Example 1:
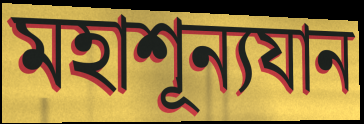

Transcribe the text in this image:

মহাশূন্যযান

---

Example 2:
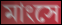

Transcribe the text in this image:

মাংসে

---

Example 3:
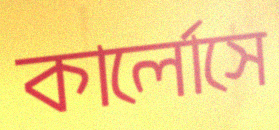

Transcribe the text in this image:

কার্লোসে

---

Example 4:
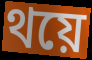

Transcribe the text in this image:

থয়ে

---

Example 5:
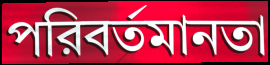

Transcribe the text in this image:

পরিবর্তমানতা